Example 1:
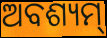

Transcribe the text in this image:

ଅବଶ୍ୟମ୍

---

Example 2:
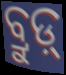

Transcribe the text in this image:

ବ୍ରୁଡ଼୍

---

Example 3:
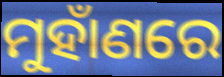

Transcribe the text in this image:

ମୁହାଁଣରେ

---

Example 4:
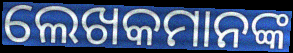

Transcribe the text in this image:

ଲେଖକମାନଙ୍କ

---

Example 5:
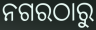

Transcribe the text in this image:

ନଗରଠାରୁ